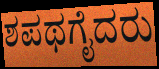
ಶಪಥಗೈದರು